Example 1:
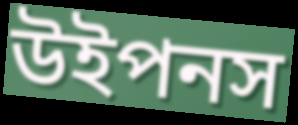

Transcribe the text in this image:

উইপনস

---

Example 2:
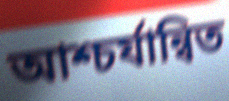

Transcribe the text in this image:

আশ্চর্যান্বিত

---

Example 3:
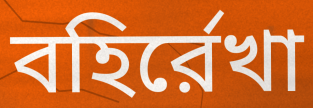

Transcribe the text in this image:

বহির্রেখা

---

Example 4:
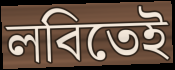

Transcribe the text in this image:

লবিতেই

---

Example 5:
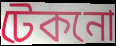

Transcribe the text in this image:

টেকনো